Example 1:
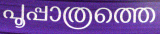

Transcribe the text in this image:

പൂപ്പാത്രത്തെ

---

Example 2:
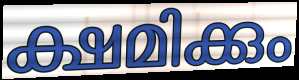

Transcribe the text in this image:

ക്ഷമിക്കും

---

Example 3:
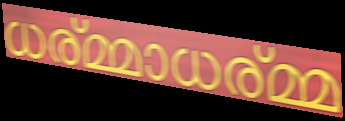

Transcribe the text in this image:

ധര്മ്മാധര്മ്മ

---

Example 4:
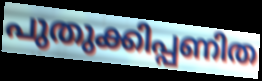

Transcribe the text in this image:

പുതുക്കിപ്പണിത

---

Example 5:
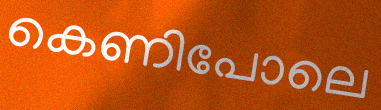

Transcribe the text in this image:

കെണിപോലെ